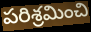
పరిశ్రమించి